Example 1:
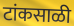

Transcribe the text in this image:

टांकसाळी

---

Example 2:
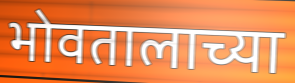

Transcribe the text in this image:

भोवतालाच्या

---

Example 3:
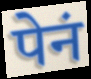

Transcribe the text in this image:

पेनं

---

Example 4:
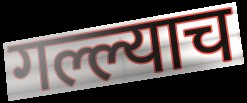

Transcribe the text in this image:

गल्ल्याच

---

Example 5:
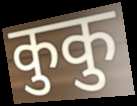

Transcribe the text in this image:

कुकु